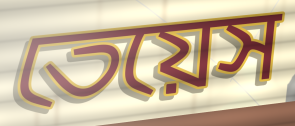
তেয়েস